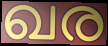
ഖര